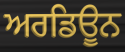
ਅਰਡਿਊਨ